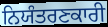
ਨਿਯੰਤਰਣਕਾਰੀ